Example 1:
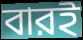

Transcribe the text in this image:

বারই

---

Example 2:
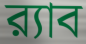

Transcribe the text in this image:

র‍্যাব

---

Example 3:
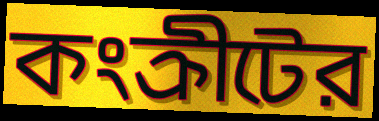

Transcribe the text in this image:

কংক্রীটের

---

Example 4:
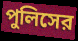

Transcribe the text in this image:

পুলিসের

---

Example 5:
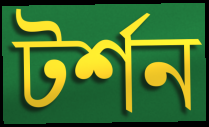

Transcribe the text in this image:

টর্শন